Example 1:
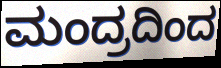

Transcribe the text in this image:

ಮಂದ್ರದಿಂದ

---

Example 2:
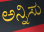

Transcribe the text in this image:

ಅನ್ನಿಸು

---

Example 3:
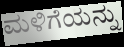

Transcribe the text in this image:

ಮಳಿಗೆಯನ್ನು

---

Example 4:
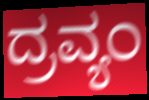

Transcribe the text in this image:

ದ್ರವ್ಯಂ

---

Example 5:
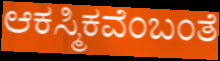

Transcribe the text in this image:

ಆಕಸ್ಮಿಕವೆಂಬಂತೆ